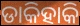
ଡାକିହାକି